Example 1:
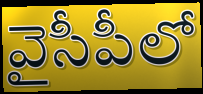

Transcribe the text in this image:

వైసీపీలో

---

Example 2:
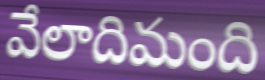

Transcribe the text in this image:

వేలాదిమంది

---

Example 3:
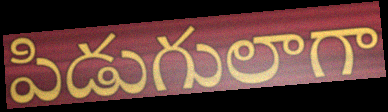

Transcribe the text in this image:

పిడుగులాగా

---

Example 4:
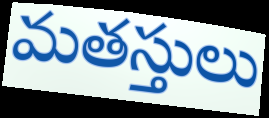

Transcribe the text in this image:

మతస్తులు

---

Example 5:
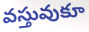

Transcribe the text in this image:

వస్తువుకూ